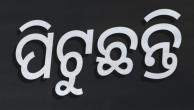
ପିଟୁଛନ୍ତି